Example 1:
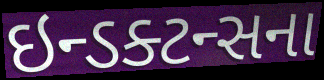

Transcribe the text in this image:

ઇન્ડક્ટન્સના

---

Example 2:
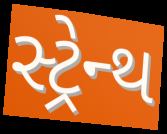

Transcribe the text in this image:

સ્ટ્રેન્થ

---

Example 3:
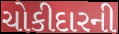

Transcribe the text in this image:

ચોકીદારની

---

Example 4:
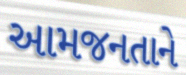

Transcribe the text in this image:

આમજનતાને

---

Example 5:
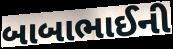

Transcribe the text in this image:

બાબાભાઈની